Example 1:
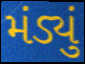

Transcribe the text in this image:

મંડ્યું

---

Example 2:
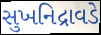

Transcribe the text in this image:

સુખનિદ્રાવડે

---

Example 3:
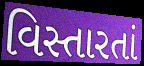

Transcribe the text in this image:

વિસ્તારતાં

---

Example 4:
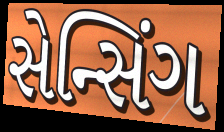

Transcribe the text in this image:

સેન્સિંગ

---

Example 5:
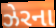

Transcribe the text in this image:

ઝેરના